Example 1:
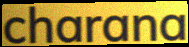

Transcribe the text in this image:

charana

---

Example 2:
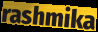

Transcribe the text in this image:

rashmika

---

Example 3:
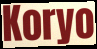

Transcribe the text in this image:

Koryo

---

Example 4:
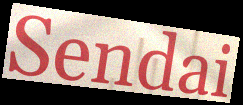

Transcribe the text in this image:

Sendai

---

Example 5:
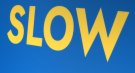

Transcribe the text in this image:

SLOW